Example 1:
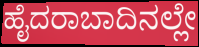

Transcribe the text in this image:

ಹೈದರಾಬಾದಿನಲ್ಲೇ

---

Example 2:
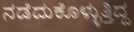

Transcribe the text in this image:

ನಡೆದುಕೊಳ್ಳುತ್ತಿದ್ದ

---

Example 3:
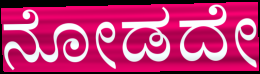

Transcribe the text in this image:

ನೋಡದೇ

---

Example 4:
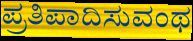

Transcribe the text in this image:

ಪ್ರತಿಪಾದಿಸುವಂಥ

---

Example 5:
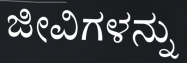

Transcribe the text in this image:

ಜೀವಿಗಳನ್ನು